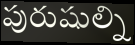
పురుషుల్ని